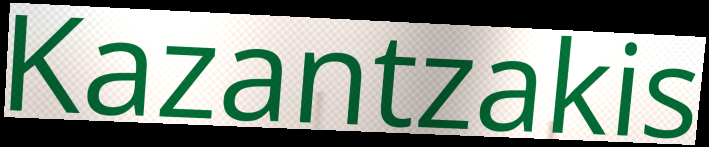
Kazantzakis